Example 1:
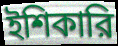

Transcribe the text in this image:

ইশিকারি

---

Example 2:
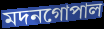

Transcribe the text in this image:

মদনগোপাল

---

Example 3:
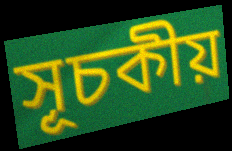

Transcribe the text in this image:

সূচকীয়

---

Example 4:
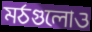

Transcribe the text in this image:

মঠগুলোও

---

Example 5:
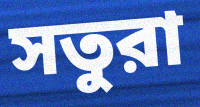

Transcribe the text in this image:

সতুরা